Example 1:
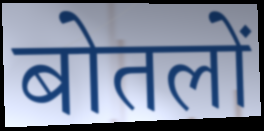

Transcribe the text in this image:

बोतलों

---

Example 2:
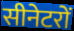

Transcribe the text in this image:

सीनेटरों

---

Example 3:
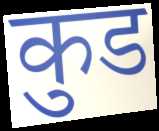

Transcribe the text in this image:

कुड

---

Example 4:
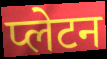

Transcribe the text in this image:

प्लेटन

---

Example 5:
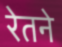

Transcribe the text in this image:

रेतने